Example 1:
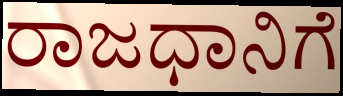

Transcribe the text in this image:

ರಾಜಧಾನಿಗೆ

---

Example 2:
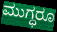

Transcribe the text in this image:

ಮುಗ್ಧರೂ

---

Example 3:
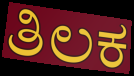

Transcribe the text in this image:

ತಿಲಕ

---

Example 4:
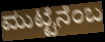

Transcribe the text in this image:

ಮುಟ್ಟೆನೆಂಬ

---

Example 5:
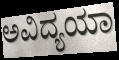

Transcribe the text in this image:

ಅವಿದ್ಯಯಾ